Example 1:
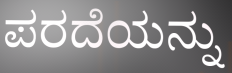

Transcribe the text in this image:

ಪರದೆಯನ್ನು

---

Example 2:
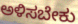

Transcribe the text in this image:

ಅಳಿಸಬೇಕು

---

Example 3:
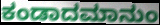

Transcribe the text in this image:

ಕಂಡಾದಮಾನುಂ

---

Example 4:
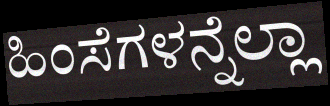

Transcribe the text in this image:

ಹಿಂಸೆಗಳನ್ನೆಲ್ಲಾ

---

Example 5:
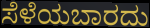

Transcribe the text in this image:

ಸೆಳೆಯಬಾರದು